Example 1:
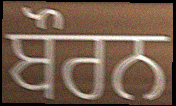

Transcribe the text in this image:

ਬੌਰਨ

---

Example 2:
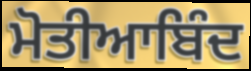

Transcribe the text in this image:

ਮੋਤੀਆਬਿੰਦ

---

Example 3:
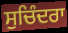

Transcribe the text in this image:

ਸੁਚਿੰਦਰਾ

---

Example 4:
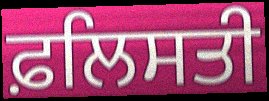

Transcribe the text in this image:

ਫ਼ਲਿਸਤੀ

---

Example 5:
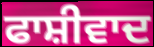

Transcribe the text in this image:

ਫਾਸ਼ੀਵਾਦ